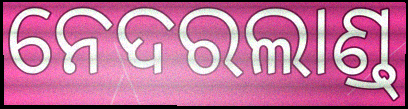
ନେଦରଲାଣ୍ଡ୍